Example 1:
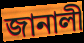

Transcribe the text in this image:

জানালী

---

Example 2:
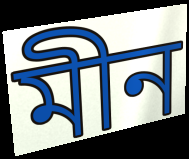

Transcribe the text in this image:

মীন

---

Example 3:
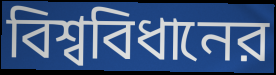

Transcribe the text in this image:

বিশ্ববিধানের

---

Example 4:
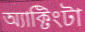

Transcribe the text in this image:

অ্যাক্টিংটা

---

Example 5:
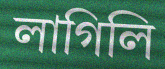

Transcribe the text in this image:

লাগিলি